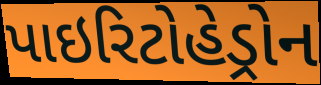
પાઇરિટોહેડ્રોન